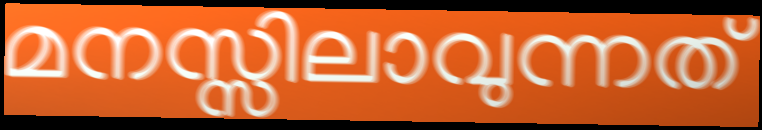
മനസ്സിലാവുന്നത്